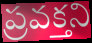
ప్రవక్తని